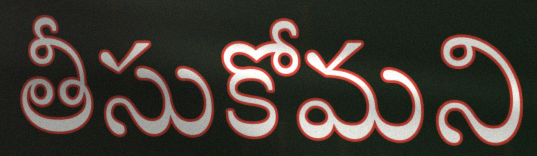
తీసుకోమని